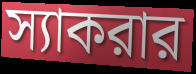
স্যাকরার